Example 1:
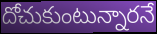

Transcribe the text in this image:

దోచుకుంటున్నారనే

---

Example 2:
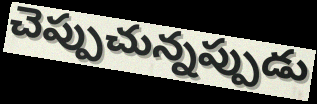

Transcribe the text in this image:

చెప్పుచున్నప్పుడు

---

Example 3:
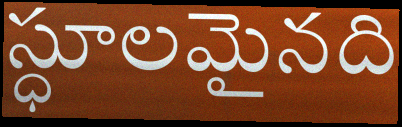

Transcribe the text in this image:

స్ధూలమైనది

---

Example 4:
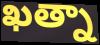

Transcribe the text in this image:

ఖత్నా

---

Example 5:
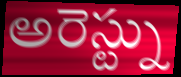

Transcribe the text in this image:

అరెస్ట్ను